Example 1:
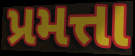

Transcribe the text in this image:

પ્રમત્તા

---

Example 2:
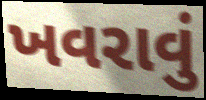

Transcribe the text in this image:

ખવરાવું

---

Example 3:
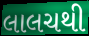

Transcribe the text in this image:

લાલચથી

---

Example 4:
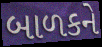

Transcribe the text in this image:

બાળકને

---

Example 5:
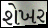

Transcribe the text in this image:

શેખર